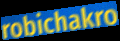
robichakro